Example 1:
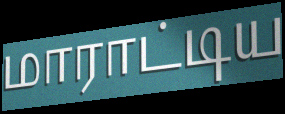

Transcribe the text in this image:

மாராட்டிய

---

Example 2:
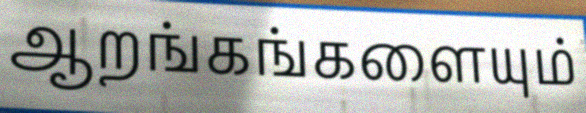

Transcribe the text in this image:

ஆறங்கங்களையும்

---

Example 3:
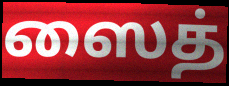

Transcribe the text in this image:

ஸைத்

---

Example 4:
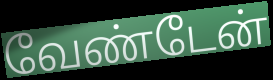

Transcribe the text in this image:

வேண்டேன்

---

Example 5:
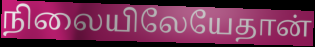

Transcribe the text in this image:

நிலையிலேயேதான்